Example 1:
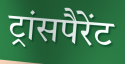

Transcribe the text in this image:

ट्रांसपैरेंट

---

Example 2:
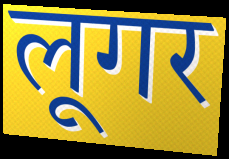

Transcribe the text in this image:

लूगर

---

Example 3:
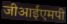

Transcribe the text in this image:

जीआईएमपी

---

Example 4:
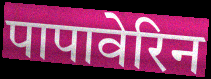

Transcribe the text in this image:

पापावेरिन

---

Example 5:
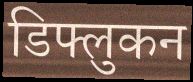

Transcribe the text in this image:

डिफ्लुकन